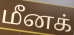
மீனக்